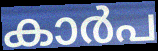
കാർപ